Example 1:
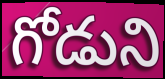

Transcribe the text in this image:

గోడుని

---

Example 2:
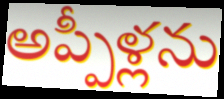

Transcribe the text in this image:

అప్పీళ్లను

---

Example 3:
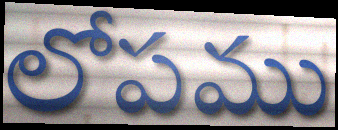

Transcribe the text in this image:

లోపము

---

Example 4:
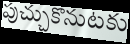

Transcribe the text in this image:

పుచ్చుకొనుటకు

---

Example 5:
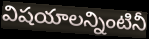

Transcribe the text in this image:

విషయాలన్నింటినీ